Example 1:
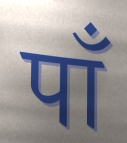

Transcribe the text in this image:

पाँ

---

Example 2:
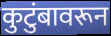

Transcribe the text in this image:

कुटुंबावरून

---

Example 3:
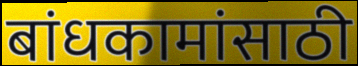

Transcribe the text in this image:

बांधकामांसाठी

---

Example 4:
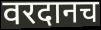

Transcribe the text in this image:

वरदानच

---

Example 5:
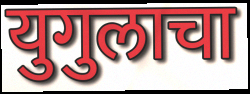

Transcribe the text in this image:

युगुलाचा